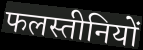
फलस्तीनियों